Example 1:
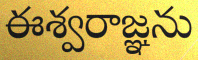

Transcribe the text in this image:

ఈశ్వరాజ్ఞను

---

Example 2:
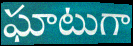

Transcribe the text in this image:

ఘాటుగా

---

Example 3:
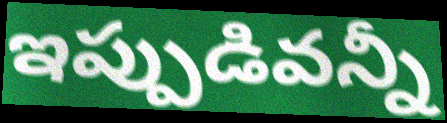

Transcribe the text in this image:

ఇప్పుడివన్నీ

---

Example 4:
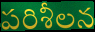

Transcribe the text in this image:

పరిశీలన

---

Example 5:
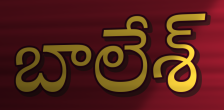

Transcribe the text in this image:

బాలేశ్